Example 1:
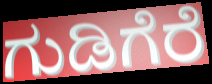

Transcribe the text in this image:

ಗುಡಿಗೆರೆ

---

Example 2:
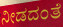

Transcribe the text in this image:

ನೀಡದಂತೆ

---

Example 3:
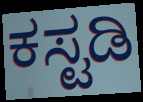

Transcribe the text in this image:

ಕಸ್ಟಡಿ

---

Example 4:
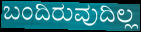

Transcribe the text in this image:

ಬಂದಿರುವುದಿಲ್ಲ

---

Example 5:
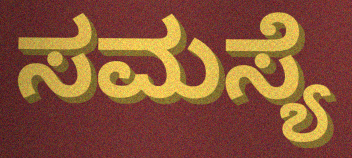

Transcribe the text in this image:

ಸಮಸ್ಯೆ